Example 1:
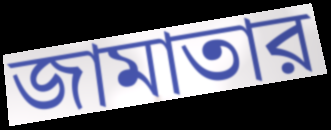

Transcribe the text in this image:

জামাতার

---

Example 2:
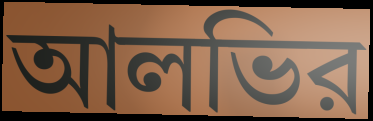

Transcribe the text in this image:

আলভির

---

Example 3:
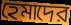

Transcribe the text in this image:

হেমাদের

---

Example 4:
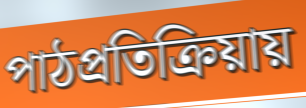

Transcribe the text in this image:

পাঠপ্রতিক্রিয়ায়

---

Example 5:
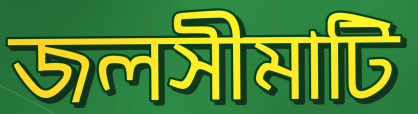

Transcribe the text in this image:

জলসীমাটি